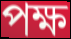
পক্ষ